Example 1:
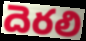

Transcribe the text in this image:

దెరలి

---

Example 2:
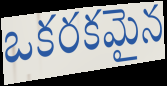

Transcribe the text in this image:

ఒకరకమైన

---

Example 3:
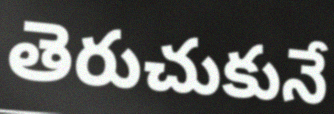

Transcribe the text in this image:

తెరుచుకునే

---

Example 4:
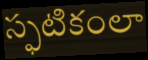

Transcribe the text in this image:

స్ఫటికంలా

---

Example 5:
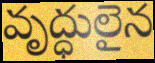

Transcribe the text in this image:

వృద్ధులైన